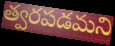
త్వరపడమని